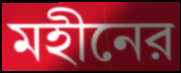
মহীনের